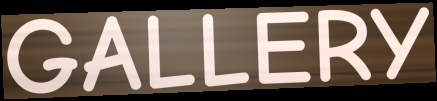
GALLERY